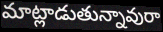
మాట్లాడుతున్నావురా